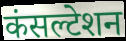
कंसल्टेशन